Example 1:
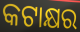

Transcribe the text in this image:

କଟାକ୍ଷର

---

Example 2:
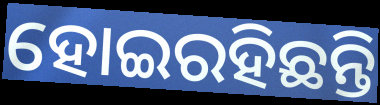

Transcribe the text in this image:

ହୋଇରହିଛନ୍ତି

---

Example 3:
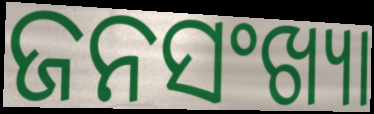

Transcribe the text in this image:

ଜନସଂଖ୍ଯା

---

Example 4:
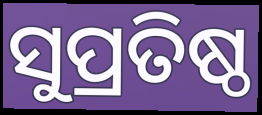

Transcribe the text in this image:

ସୁପ୍ରତିଷ୍ଠ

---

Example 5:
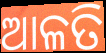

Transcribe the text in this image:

ଆଳତି